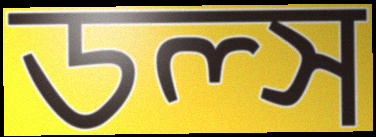
ডল্স